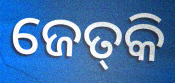
ଜେତ୍‌କି